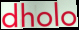
dholo